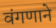
वंगणाने